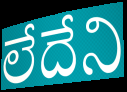
లేదేని